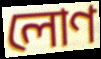
লোণ